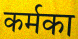
कर्मका